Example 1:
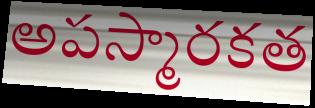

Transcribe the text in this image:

అపస్మారకత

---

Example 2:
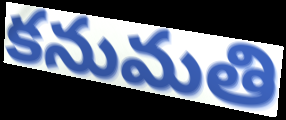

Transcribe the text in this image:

కనుమతి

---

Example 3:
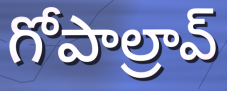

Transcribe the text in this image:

గోపాల్రావ్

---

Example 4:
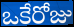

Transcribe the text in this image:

ఒకేరోజు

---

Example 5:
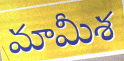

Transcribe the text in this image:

మామీశ